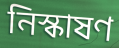
নিস্কাষণ